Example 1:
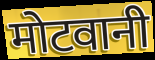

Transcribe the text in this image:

मोटवानी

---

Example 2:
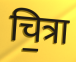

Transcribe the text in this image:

चि॒त्रा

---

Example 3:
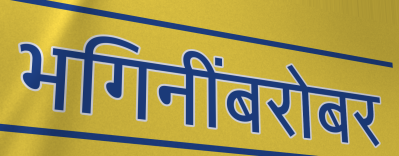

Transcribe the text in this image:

भगिनींबरोबर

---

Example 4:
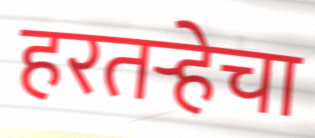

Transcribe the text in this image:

हरतऱ्हेचा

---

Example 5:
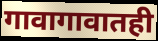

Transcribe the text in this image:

गावागावातही